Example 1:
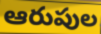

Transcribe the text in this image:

ఆరుపుల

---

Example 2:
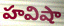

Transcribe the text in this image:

హవిషా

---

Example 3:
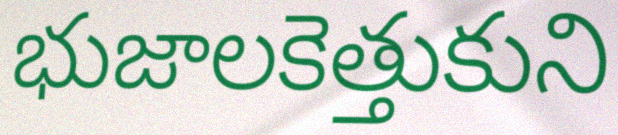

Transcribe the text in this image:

భుజాలకెత్తుకుని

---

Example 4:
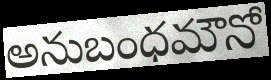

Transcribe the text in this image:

అనుబంధమౌనో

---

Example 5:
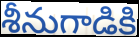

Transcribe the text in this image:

శీనుగాడికి